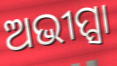
ଅଭୀପ୍ସା